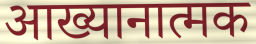
आख्यानात्मक